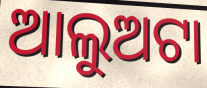
ଆଲୁଅଟା